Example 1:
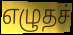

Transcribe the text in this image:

எழுதச்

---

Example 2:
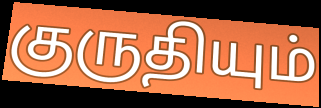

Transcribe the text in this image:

குருதியும்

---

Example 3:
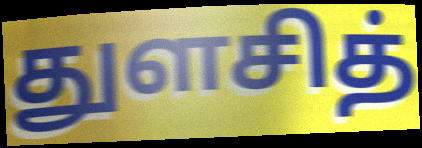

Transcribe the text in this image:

துளசித்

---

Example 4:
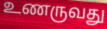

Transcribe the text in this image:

உணருவது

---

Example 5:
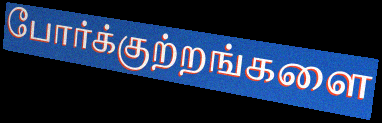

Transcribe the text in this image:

போர்க்குற்றங்களை